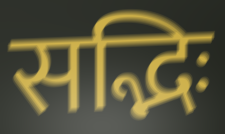
सद्भिः